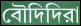
বৌদিদিরা